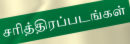
சரித்திரப்படங்கள்